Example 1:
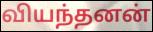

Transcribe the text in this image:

வியந்தனன்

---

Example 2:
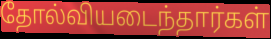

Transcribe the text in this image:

தோல்வியடைந்தார்கள்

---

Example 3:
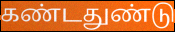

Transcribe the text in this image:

கண்டதுண்டு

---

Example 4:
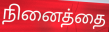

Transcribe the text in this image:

நினைத்தை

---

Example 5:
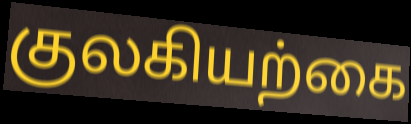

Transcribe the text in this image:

குலகியற்கை